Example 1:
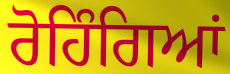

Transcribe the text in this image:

ਰੋਹਿੰਗਿਆਂ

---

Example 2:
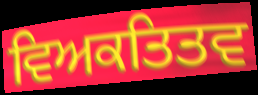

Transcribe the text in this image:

ਵਿਅਕਤਿਤਵ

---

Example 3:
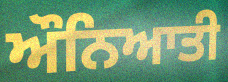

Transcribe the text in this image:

ਔਨਿਆਤੀ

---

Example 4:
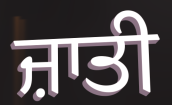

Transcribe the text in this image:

ਜ਼ਾਤੀ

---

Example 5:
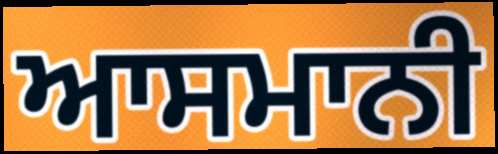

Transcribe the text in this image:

ਆਸਮਾਨੀ